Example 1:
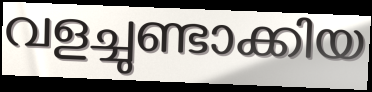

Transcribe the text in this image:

വളച്ചുണ്ടാക്കിയ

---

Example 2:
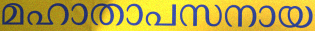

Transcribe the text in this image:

മഹാതാപസനായ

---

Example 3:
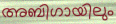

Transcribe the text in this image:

അബിഗായിലും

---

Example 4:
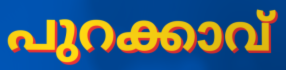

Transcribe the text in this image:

പുറക്കാവ്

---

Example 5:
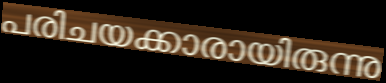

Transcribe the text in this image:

പരിചയക്കാരായിരുന്നു